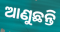
ଆଣୁଛନ୍ତି